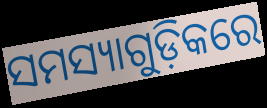
ସମସ୍ୟାଗୁଡ଼ିକରେ